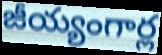
జీయ్యంగార్ల